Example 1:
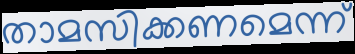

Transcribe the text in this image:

താമസിക്കണമെന്ന്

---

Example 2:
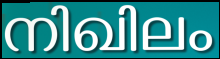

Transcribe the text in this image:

നിഖിലം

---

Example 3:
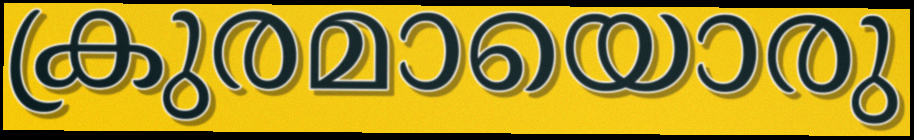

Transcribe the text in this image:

ക്രുരമായൊരു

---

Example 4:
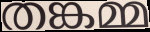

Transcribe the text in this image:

തങ്കമ്മ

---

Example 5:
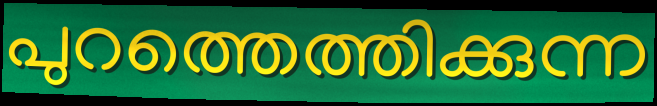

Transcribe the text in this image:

പുറത്തെത്തിക്കുന്ന